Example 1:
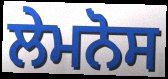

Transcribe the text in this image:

ਲੇਮਨੋਸ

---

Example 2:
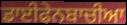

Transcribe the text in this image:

ਡਾਈਫੇਨਬਾਚੀਆ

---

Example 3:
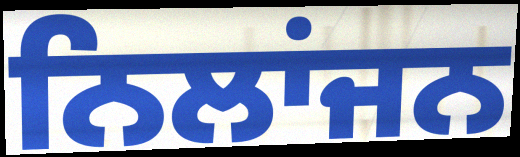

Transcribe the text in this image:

ਨਿਲਾਂਜਨ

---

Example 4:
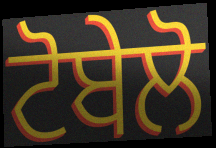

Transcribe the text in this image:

ਟੋਬੇਲੋ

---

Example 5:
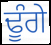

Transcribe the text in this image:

ਢੂੰਗੇ